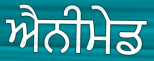
ਐਨੀਮੇਡ